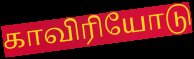
காவிரியோடு